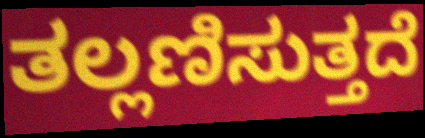
ತಲ್ಲಣಿಸುತ್ತದೆ